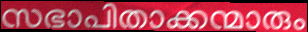
സഭാപിതാക്കന്മാരും